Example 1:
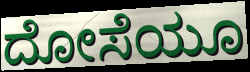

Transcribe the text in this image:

ದೋಸೆಯೂ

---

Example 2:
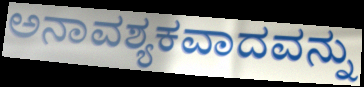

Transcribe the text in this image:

ಅನಾವಶ್ಯಕವಾದವನ್ನು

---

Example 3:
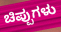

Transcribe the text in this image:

ಚಿಪ್ಪುಗಳು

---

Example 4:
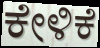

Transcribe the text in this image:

ಕೇಳಿಕೆ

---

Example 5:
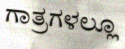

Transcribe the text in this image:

ಗಾತ್ರಗಳಲ್ಲೂ